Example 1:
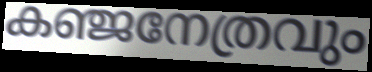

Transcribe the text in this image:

കഞ്ജനേത്രവും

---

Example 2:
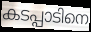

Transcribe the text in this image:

കടപ്പാടിനെ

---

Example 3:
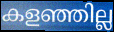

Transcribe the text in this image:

കളഞ്ഞില്ല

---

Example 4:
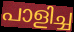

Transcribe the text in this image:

പാളിച്ച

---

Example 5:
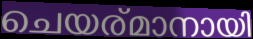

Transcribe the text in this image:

ചെയര്മാനായി